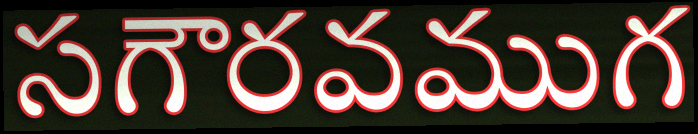
సగౌరవముగ